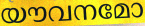
യൗവനമോ